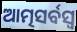
ଆତ୍ମସର୍ବସ୍ଵ